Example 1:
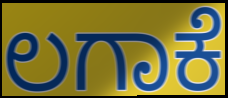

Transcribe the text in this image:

ಲಗಾಕೆ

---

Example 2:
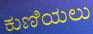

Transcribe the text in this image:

ಕುಣಿಯಲು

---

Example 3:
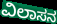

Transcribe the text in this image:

ವಿಲಾಸನ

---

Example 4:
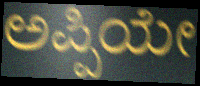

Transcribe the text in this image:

ಅಪ್ಪಿಯೇ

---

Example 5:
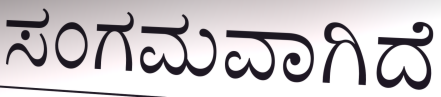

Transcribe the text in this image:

ಸಂಗಮವಾಗಿದೆ